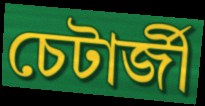
চেটাৰ্জী